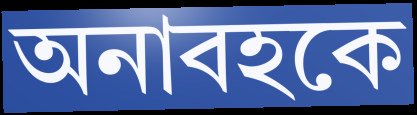
অনাবহকে